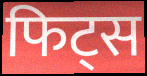
फिट्स